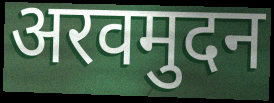
अरवमुदन